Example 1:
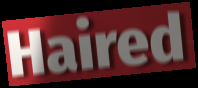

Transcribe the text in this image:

Haired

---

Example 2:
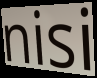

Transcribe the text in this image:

nisi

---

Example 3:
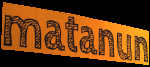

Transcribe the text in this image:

matanun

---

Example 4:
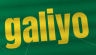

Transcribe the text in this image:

galiyo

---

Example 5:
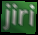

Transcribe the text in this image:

jiri